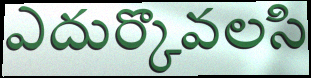
ఎదుర్కొవలసి